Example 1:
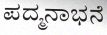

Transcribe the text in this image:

ಪದ್ಮನಾಭನೆ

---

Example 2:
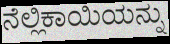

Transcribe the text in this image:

ನೆಲ್ಲಿಕಾಯಿಯನ್ನು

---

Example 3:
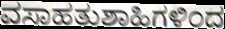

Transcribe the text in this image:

ವಸಾಹತುಶಾಹಿಗಳಿಂದ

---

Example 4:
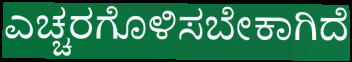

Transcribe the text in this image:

ಎಚ್ಚರಗೊಳಿಸಬೇಕಾಗಿದೆ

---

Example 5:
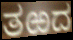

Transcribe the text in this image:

ತಱದ